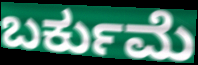
ಬರ್ಕುಮೆ